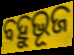
ବହୁଭୂଜ